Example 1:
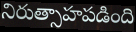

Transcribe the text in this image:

నిరుత్సాహపడింది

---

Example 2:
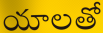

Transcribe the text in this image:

యాలతో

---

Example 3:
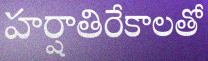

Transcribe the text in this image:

హర్షాతిరేకాలతో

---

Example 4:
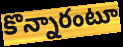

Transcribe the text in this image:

కొన్నారంటూ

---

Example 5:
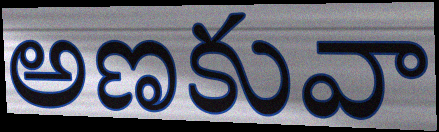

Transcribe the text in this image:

అణకువా